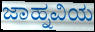
ಜಾಹ್ನವಿಯ